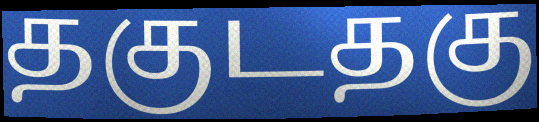
தகுடதகு